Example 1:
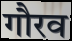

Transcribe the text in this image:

गौरव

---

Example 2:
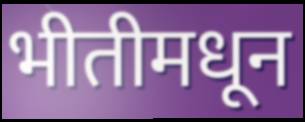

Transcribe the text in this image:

भीतीमधून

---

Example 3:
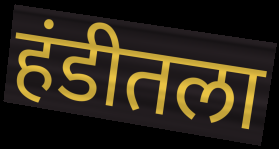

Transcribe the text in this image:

हंडीतला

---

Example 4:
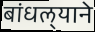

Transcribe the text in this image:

बांधल्याने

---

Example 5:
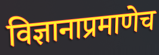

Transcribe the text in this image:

विज्ञानाप्रमाणेच